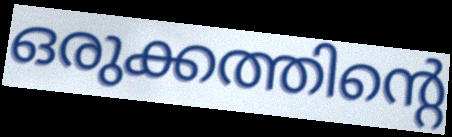
ഒരുക്കത്തിന്റെ